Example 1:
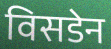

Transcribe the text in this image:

विसडेन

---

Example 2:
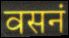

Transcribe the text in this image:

वसनं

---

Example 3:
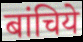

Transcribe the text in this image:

बांचिये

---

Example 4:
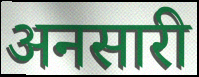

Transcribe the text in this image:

अनसारी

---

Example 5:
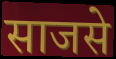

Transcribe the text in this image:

साजसे